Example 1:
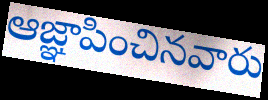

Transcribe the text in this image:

ఆజ్ఞాపించినవారు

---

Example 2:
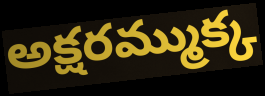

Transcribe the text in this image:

అక్షరమ్ముక్క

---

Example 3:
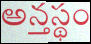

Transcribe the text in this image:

అన్తస్థం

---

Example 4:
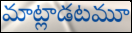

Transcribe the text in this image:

మాట్లాడటమూ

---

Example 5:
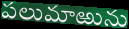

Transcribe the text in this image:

పలుమాఱును